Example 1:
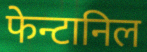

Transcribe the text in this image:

फेन्टानिल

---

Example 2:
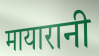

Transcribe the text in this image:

मायारानी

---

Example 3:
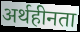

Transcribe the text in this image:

अर्थहीनता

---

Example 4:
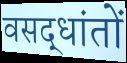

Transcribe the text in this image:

वसद्धांतों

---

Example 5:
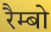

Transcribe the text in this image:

रैम्बो